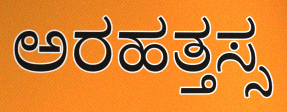
ಅರಹತ್ತಸ್ಸ